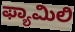
ಫ್ಯಾಮಿಲಿ